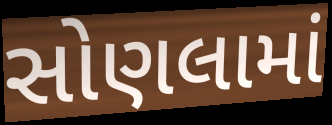
સોણલામાં